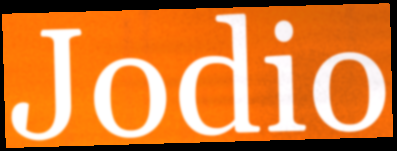
Jodio